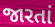
જારતાં